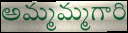
అమ్మమ్మగారి